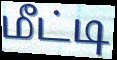
மீட்டி